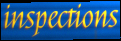
inspections